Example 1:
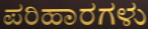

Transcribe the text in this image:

ಪರಿಹಾರಗಳು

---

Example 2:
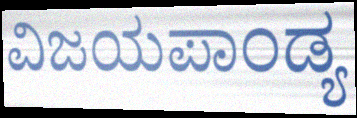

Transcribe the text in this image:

ವಿಜಯಪಾಂಡ್ಯ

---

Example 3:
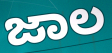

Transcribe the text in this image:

ಜಾಲ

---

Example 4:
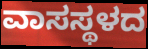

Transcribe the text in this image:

ವಾಸಸ್ಥಳದ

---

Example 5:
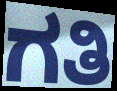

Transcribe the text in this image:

ಗತಿ